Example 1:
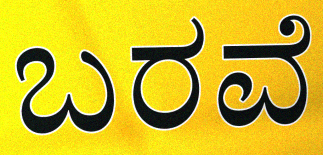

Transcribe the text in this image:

ಬರವೆ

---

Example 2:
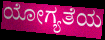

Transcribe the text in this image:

ಯೋಗ್ಯತೆಯ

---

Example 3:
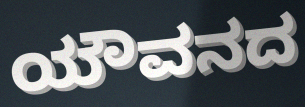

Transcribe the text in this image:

ಯೌವನದ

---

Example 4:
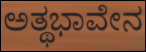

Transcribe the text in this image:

ಅತ್ಥಭಾವೇನ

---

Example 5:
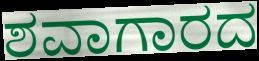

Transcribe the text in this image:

ಶವಾಗಾರದ